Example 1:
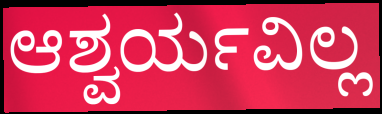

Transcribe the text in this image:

ಆಶ್ವರ್ಯವಿಲ್ಲ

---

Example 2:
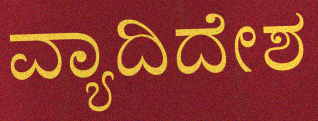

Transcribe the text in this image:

ವ್ಯಾದಿದೇಶ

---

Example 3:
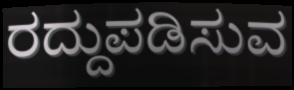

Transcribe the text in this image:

ರದ್ದುಪಡಿಸುವ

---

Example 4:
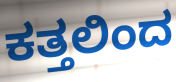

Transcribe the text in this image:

ಕತ್ತಲಿಂದ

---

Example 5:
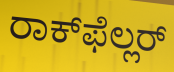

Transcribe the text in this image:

ರಾಕ್‌ಫೆಲ್ಲರ್